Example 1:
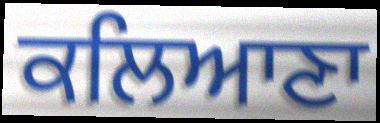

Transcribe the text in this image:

ਕਲਿਆਣਾ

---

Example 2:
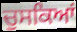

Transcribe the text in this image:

ਚੁਸਕਿਆਂ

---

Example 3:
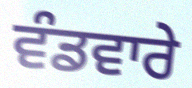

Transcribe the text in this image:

ਵੰਡਵਾਰੇ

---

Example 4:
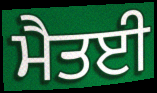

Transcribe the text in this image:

ਮੈਤਈ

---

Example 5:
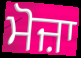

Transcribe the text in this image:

ਮੋਜ਼ਾ